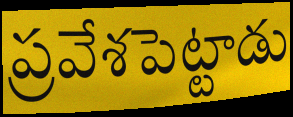
ప్రవేశపెట్టాడు